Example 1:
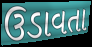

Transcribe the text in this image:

ઉડાવતા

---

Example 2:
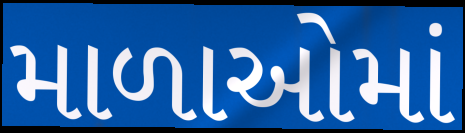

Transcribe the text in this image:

માળાઓમાં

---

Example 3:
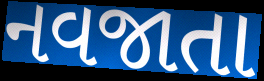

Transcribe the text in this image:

નવજાતા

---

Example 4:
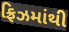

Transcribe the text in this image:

ફ્રિઝમાંથી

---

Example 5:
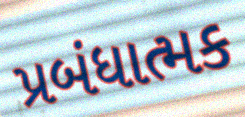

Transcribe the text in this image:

પ્રબંધાત્મક